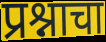
प्रश्नाचा